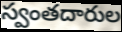
స్వంతదారుల